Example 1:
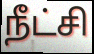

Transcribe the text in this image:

நீட்சி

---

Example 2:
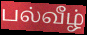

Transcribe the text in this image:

பல்வீழ்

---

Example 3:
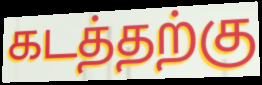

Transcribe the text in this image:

கடத்தற்கு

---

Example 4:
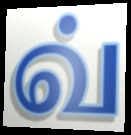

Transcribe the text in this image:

வ்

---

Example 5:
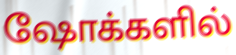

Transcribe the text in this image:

ஷோக்களில்